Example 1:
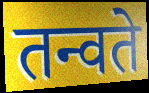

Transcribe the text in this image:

तन्वते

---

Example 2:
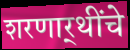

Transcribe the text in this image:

शरणार्थींचे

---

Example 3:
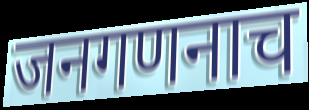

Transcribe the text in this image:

जनगणनाच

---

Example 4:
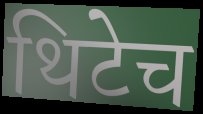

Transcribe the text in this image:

थिटेच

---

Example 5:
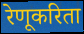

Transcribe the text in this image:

रेणूकरिता